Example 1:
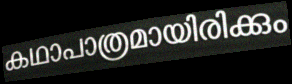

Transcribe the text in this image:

കഥാപാത്രമായിരിക്കും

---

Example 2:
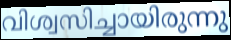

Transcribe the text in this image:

വിശ്വസിച്ചായിരുന്നു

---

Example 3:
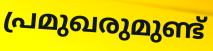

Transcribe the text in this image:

പ്രമുഖരുമുണ്ട്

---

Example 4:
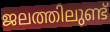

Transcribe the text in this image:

ജലത്തിലുണ്ട്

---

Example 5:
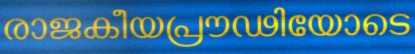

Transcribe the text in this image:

രാജകീയപ്രൗഢിയോടെ